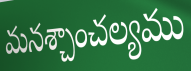
మనశ్చాంచల్యము